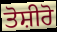
ਤੋਸ਼ੀਰੋ